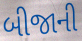
બીજાની